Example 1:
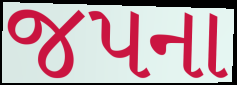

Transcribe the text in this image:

જપના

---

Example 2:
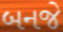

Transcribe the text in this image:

બનજે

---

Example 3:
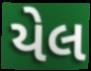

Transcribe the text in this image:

યેલ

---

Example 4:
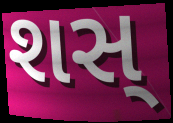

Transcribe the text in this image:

શસ્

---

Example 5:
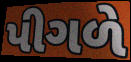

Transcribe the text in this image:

પીગળે